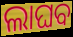
ଲାଘବ